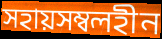
সহায়সম্বলহীন